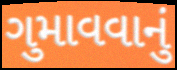
ગુમાવવાનું